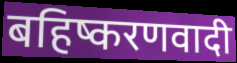
बहिष्करणवादी